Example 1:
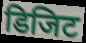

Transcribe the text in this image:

डिजिट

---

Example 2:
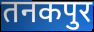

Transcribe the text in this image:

तनकपुर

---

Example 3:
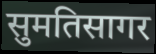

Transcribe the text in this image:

सुमतिसागर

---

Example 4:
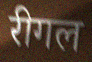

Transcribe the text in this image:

रीगल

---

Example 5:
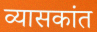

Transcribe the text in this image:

व्यासकांत